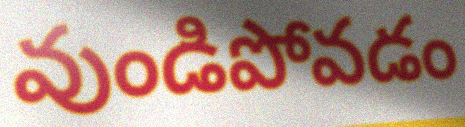
వుండిపోవడం